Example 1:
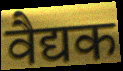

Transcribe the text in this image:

वैद्यक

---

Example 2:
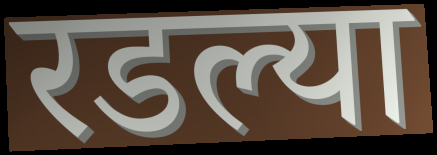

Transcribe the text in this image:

रडल्या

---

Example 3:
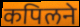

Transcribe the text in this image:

कपिलने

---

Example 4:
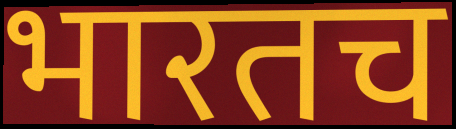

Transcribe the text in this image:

भारतच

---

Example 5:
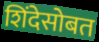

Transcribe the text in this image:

शिंदेसोबत